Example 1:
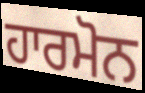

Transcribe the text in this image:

ਹਾਰਮੋਨ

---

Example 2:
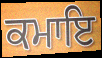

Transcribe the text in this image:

ਕਮਾਇ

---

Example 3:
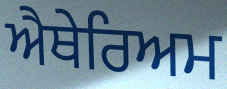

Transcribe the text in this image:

ਐਥੇਰਿਅਮ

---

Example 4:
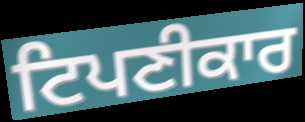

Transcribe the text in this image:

ਟਿਪਣੀਕਾਰ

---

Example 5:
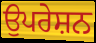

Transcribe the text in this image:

ਉਪਰੇਸ਼ਨ